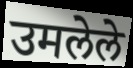
उमलेले